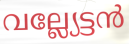
വല്ല്യേട്ടൻ